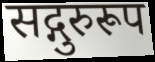
सद्गुरुरूप